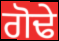
ਗੋਢੇ